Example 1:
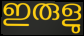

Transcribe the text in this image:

ഇരുളു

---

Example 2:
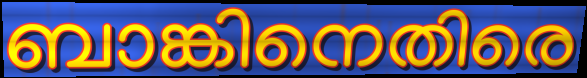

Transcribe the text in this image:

ബാങ്കിനെതിരെ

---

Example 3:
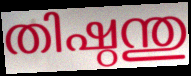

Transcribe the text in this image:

തിഷ്ഠന്തു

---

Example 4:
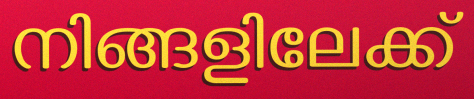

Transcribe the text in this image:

നിങ്ങളിലേക്ക്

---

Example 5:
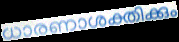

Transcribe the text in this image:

ധാരണാശക്തിക്കും